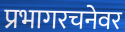
प्रभागरचनेवर